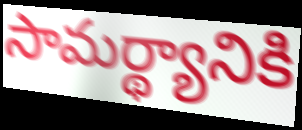
సామర్థ్యానికి